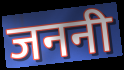
जननी